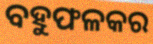
ବହୁଫଳକର